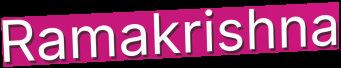
Ramakrishna